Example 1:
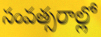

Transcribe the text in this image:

సంవత్సరాల్లో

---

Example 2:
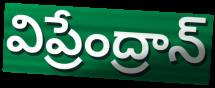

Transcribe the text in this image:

విప్రేంద్రాన్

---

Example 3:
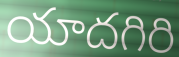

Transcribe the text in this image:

యాదగిరి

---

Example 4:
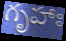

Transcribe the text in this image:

గృహాః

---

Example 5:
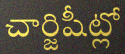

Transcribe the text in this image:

చార్జిషీట్లో